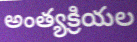
అంత్యక్రియల